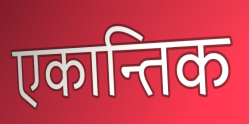
एकान्तिक